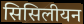
सिसिलीयन